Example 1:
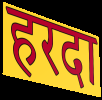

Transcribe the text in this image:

हरदा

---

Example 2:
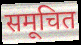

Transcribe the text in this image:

समूचित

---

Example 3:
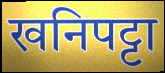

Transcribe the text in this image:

खनिपट्टा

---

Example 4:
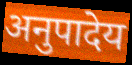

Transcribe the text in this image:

अनुपादेय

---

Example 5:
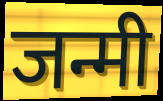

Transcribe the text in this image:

जन्मी